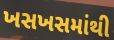
ખસખસમાંથી